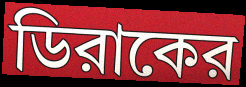
ডিরাকের